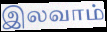
இலவாம்